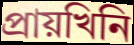
প্ৰায়খিনি